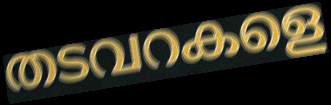
തടവറകളെ